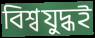
বিশ্বযুদ্ধই